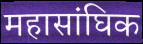
महासांघिक